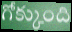
గోక్కుంది